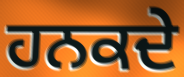
ਹਨਕਦੇ